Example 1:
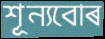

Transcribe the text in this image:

শূন্যবোৰ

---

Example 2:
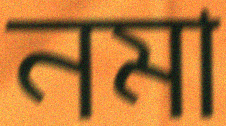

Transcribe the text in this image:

নমা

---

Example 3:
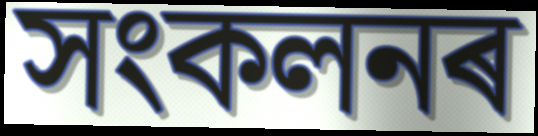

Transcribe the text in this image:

সংকলনৰ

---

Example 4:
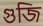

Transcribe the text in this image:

গুজি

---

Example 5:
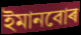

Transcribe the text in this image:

ইমানবোৰ